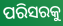
ପରିସରକୁ